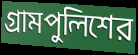
গ্রামপুলিশের